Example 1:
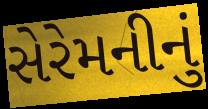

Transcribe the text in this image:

સેરેમનીનું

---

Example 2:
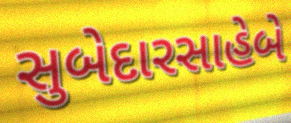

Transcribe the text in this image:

સુબેદારસાહેબે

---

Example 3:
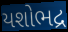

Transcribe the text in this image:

યશોભદ્ર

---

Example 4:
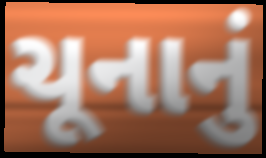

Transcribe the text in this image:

ચૂનાનું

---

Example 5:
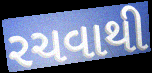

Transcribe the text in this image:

રચવાથી